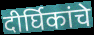
दीर्घिकांचे